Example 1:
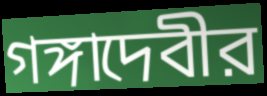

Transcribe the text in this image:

গঙ্গাদেবীর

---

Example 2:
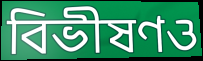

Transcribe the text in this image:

বিভীষণও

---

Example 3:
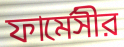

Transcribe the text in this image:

ফার্মেসীর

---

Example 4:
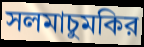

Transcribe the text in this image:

সলমাচুমকির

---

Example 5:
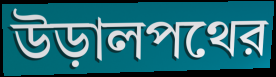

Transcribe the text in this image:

উড়ালপথের